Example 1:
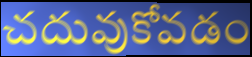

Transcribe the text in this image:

చదువుకోవడం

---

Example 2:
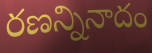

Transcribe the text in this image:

రణన్నినాదం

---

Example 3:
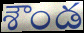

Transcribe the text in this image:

శౌండ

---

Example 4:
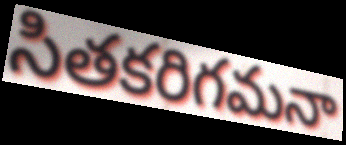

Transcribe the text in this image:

సితకరిగమనా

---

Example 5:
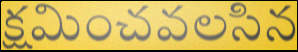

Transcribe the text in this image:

క్షమించవలసిన